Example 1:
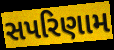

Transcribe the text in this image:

સપરિણામ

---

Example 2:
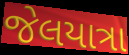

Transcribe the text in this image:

જેલયાત્રા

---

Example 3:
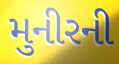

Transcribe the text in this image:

મુનીરની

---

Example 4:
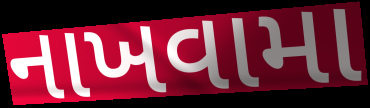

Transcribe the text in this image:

નાખવામા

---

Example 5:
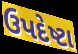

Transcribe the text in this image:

ઉપદેષ્ટા